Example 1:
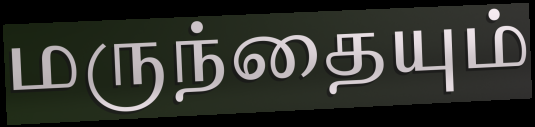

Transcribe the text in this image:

மருந்தையும்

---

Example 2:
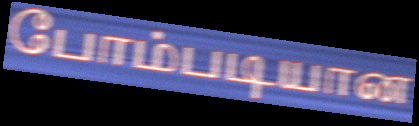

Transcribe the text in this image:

போம்படியான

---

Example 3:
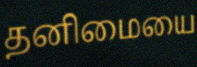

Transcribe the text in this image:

தனிமையை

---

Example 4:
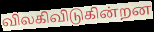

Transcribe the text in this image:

விலகிவிடுகின்றன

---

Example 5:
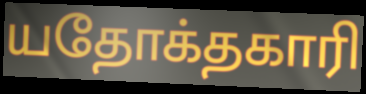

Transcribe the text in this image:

யதோக்தகாரி